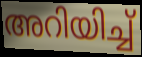
അറിയിച്ച്